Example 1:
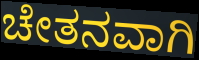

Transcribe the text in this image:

ಚೇತನವಾಗಿ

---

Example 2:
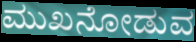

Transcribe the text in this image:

ಮುಖನೋಡುವ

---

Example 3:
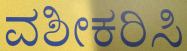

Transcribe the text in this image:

ವಶೀಕರಿಸಿ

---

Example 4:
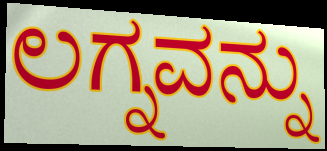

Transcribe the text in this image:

ಲಗ್ನವನ್ನು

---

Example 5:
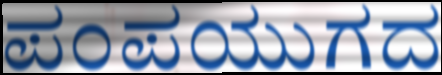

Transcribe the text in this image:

ಪಂಪಯುಗದ